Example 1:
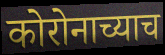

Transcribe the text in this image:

कोरोनाच्याच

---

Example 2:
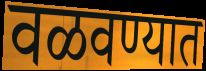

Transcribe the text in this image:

वळवण्यात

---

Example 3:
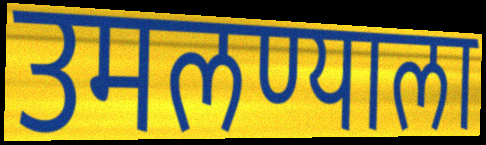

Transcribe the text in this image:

उमलण्याला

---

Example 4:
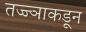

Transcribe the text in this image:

तज्ज्ञाकडून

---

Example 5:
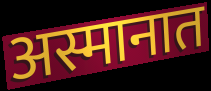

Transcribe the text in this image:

अस्मानात